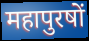
महापुरषों